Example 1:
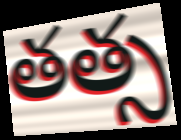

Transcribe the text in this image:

తత్స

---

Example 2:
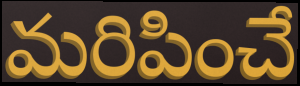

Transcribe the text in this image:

మరిపించే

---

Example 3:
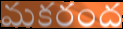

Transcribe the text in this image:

మకరంద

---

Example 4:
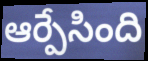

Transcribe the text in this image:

ఆర్పేసింది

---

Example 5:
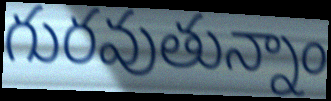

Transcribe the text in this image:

గురవుతున్నాం